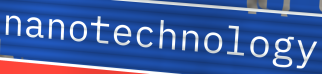
nanotechnology